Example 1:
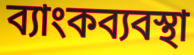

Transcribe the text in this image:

ব্যাংকব্যবস্থা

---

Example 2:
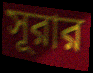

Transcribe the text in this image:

সূরার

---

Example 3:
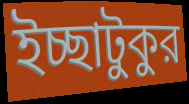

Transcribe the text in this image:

ইচ্ছাটুকুর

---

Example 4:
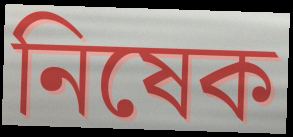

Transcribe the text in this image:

নিষেক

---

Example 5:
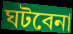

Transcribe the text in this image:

ঘটবেনা